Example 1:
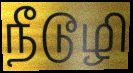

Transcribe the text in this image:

நீடூழி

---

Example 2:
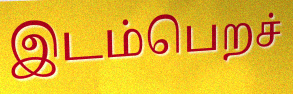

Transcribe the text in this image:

இடம்பெறச்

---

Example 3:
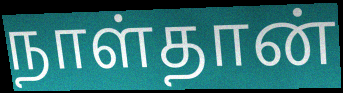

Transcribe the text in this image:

நாள்தான்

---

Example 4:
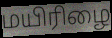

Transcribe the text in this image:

மயிரிழை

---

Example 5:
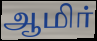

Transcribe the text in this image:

ஆமிர்